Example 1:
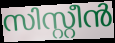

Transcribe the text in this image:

സിസ്റ്റീൻ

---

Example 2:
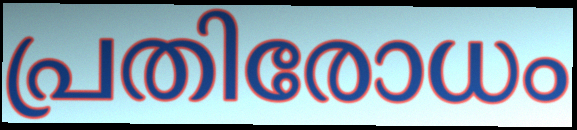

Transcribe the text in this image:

പ്രതിരോധം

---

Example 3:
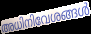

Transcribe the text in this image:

അധിനിവേശങ്ങൾ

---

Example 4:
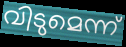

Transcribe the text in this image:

വിടുമെന്ന്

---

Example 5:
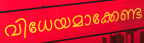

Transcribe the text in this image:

വിധേയമാക്കേണ്ട